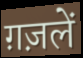
ग़ज़लें